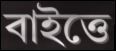
বাইত্তে